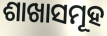
ଶାଖାସମୂହ